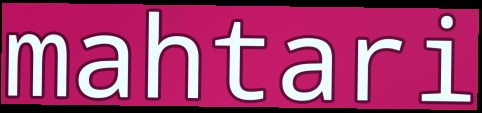
mahtari